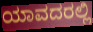
ಯಾವದರಲ್ಲಿ